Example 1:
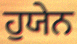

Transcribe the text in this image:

ਹੁਯੇਨ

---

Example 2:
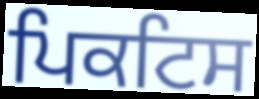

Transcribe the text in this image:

ਪਿਕਟਿਸ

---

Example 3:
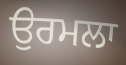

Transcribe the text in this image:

ਉਰਮਲਾ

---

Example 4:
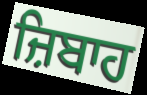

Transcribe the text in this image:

ਜ਼ਿਬਾਹ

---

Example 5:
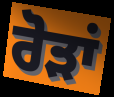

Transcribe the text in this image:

ਰੋੜਾਂ